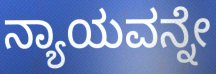
ನ್ಯಾಯವನ್ನೇ